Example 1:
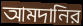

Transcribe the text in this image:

আমদানির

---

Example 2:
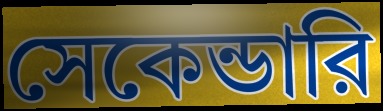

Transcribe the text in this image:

সেকেন্ডারি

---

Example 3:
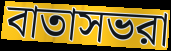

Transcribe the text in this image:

বাতাসভরা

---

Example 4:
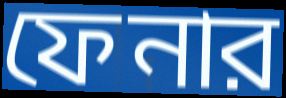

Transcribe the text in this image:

ফেনার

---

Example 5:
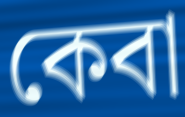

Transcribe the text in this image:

কেবা